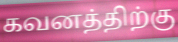
கவனத்திற்கு